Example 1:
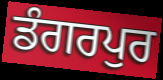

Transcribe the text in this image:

ਡੰਗਰਪੁਰ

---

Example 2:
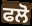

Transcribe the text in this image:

ਫਲੋ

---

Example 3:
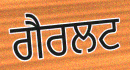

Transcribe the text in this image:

ਗੈਰਲਟ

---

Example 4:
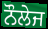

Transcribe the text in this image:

ਨੌਲੇਜ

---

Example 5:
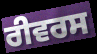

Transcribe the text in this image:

ਰੀਵਰਸ